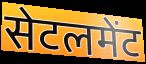
सेटलमेंट